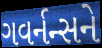
ગવર્નન્સને